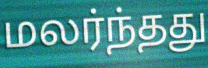
மலர்ந்தது